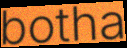
botha